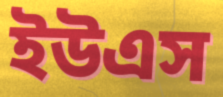
ইউএস